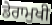
ਡੇਰਾਮੁਖੀ